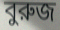
বুরুজ